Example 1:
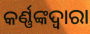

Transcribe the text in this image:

କର୍ଣ୍ଣଙ୍କଦ୍ୱାରା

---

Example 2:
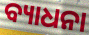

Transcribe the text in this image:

ବ୍ୟାଧନା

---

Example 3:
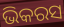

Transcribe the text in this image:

ଭିକରସ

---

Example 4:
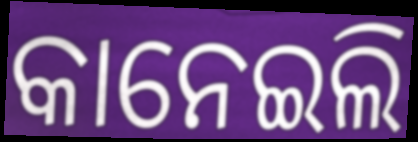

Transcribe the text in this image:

କାନେଇଲି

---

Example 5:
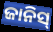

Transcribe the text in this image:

ଜାନିସ୍